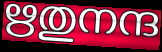
ഋതുനന്ദ